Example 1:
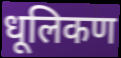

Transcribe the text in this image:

धूलिकण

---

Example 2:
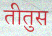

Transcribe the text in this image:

तीतुस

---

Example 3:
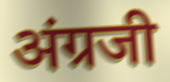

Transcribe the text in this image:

अंग्रजी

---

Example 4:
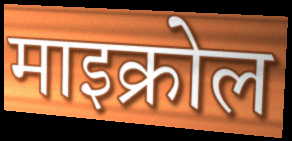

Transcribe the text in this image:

माइक्रोल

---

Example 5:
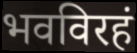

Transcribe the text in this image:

भवविरहं